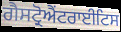
ਗੈਸਟ੍ਰੋਐਂਟਰਾਈਟਿਸ